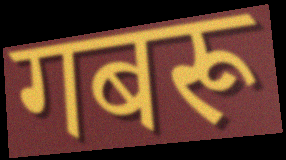
गबरू